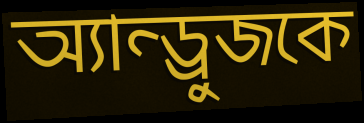
অ্যান্ড্রুজকে